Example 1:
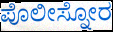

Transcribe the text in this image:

ಪೊಲೀಸ್ನೋರ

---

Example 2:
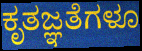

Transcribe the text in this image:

ಕೃತಜ್ಞತೆಗಳೂ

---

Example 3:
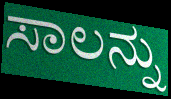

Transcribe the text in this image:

ಸಾಲನ್ನು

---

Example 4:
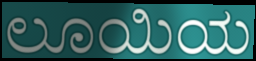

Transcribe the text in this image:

ಲೂಯಿಯ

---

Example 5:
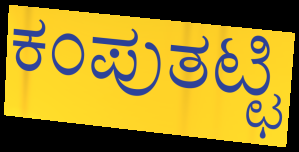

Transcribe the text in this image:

ಕಂಪುತಟ್ಟಿ